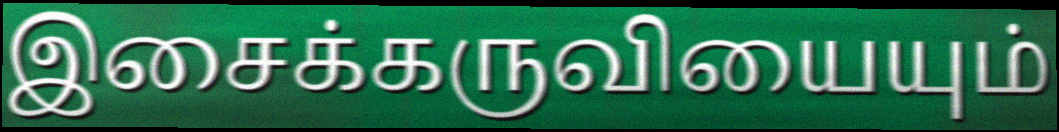
இசைக்கருவியையும்